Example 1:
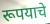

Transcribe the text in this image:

रूपयाचे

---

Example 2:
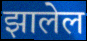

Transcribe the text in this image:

झालेल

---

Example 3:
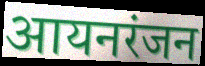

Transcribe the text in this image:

आयनरंजन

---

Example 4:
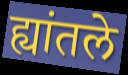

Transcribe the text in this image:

ह्यांतले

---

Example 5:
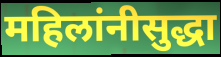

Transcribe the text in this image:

महिलांनीसुद्धा